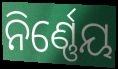
ନିର୍ଣ୍ଣେୟ